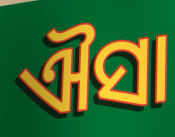
ଐସା